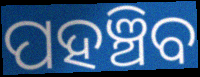
ପହଞ୍ଚିବ